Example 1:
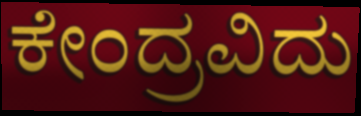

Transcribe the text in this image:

ಕೇಂದ್ರವಿದು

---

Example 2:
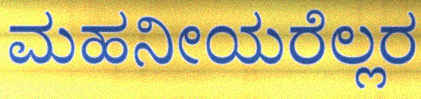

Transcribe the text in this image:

ಮಹನೀಯರೆಲ್ಲರ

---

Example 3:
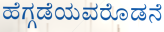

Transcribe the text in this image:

ಹೆಗ್ಗಡೆಯವರೊಡನೆ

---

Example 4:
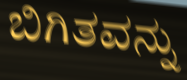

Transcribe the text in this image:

ಬಿಗಿತವನ್ನು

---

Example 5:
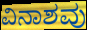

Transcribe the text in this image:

ವಿನಾಶವು